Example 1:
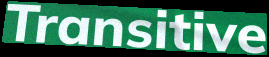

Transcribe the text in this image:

Transitive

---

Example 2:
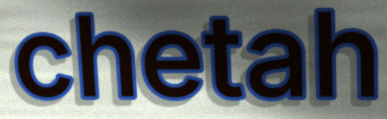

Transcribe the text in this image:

chetah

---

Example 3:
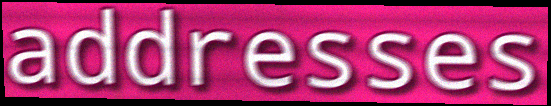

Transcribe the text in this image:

addresses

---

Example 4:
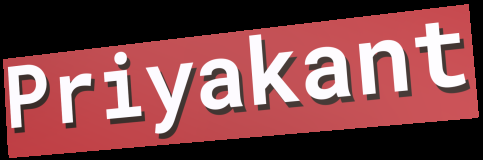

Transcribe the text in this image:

Priyakant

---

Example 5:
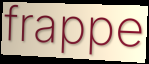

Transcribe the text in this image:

frappe